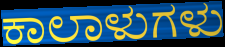
ಕಾಲಾಳುಗಳು